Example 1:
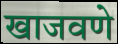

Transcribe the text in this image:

खाजवणे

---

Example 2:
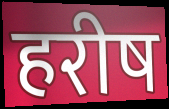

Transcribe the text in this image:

हरीष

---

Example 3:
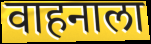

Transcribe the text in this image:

वाहनाला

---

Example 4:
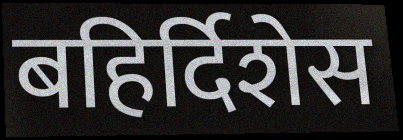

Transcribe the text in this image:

बहिर्दिशेस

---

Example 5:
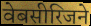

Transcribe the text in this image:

वेबसीरिजने